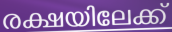
രക്ഷയിലേക്ക്